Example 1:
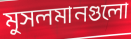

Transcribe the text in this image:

মুসলমানগুলো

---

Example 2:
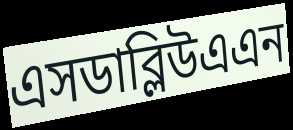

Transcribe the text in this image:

এসডাব্লিউএএন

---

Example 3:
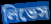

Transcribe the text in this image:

লিভেস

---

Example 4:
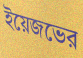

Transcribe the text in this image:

ইয়েজভের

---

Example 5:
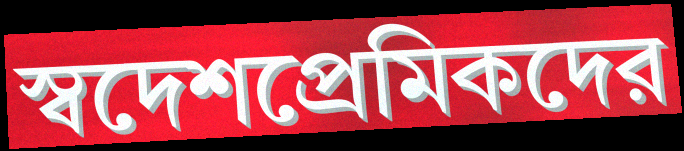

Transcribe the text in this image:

স্বদেশপ্রেমিকদের